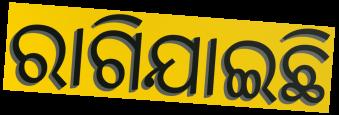
ରାଗିଯାଇଛି